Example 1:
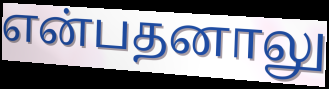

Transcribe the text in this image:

என்பதனாலு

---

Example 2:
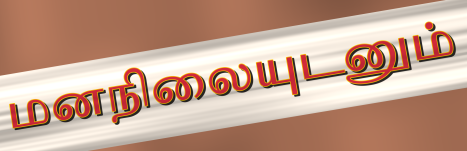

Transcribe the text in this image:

மனநிலையுடனும்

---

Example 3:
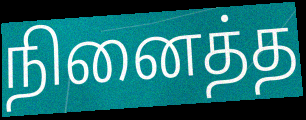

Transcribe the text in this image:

நினைத்த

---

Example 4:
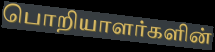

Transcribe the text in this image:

பொறியாளர்களின்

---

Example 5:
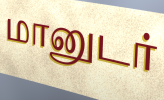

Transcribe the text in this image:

மானுடர்